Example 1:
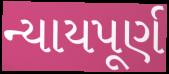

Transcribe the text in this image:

ન્યાયપૂર્ણ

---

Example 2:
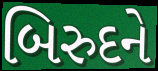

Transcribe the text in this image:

બિરુદને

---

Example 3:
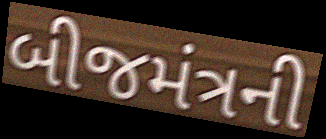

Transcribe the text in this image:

બીજમંત્રની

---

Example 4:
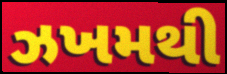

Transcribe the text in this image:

ઝખમથી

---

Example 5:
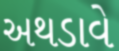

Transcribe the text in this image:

અથડાવે